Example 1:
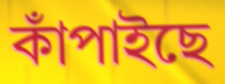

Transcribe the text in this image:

কাঁপাইছে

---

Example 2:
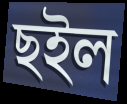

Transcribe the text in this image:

ছইল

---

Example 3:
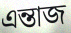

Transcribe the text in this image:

এন্তাজ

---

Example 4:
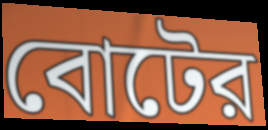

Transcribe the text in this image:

বোটের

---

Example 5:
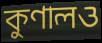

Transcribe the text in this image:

কুণালও